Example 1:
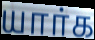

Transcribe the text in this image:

யார்க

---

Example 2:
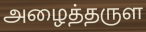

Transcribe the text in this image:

அழைத்தருள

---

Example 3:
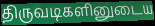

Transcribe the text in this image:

திருவடிகளினுடைய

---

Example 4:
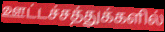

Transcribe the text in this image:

ஊட்டச்சத்துக்களில்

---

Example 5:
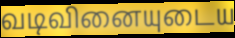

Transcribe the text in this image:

வடிவினையுடைய